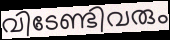
വിടേണ്ടിവരും